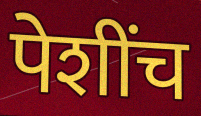
पेशींच